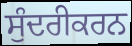
ਸੁੰਦਰੀਕਰਨ